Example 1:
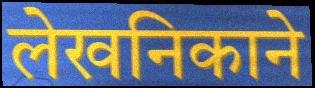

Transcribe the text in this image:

लेखनिकाने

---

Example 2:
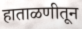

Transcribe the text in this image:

हाताळणीतून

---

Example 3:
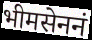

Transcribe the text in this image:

भीमसेननं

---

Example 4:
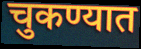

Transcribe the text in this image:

चुकण्यात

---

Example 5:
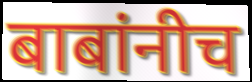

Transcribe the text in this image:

बाबांनीच